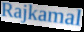
Rajkamal